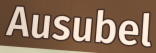
Ausubel